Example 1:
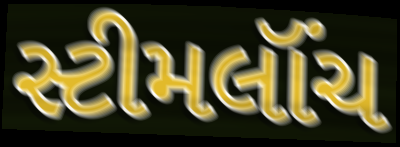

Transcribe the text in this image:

સ્ટીમલૉંચ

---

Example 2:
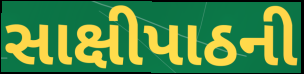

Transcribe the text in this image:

સાક્ષીપાઠની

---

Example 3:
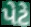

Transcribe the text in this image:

પેટે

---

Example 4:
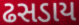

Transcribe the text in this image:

ઢસડાય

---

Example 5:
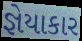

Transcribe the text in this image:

જ્ઞેયાકાર